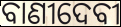
ବାଣୀଦେବୀ